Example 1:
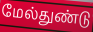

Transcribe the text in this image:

மேல்துண்டு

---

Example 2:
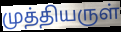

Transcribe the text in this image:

முத்தியருள்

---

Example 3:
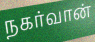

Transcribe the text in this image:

நகர்வான்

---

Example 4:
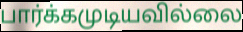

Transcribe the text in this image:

பார்க்கமுடியவில்லை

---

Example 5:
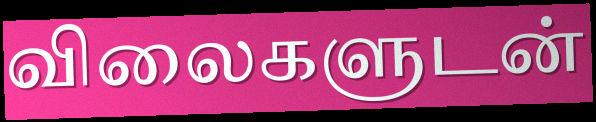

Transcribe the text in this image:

விலைகளுடன்